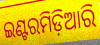
ଇଣ୍ଟରମିଡ଼ିଆରି